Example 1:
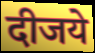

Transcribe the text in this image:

दीजये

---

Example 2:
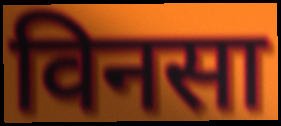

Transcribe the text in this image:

विनसा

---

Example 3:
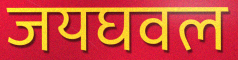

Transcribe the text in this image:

जयघवल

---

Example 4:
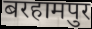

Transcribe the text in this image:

बरहामपुर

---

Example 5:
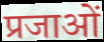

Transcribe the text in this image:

प्रजाओं